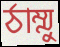
ঠাম্মু